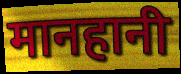
मानहानी